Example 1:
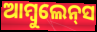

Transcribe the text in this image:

ଆମ୍ବୁଲେନ୍‌ସ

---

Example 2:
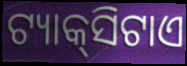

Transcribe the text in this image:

ଟ୍ୟାକ୍‌ସିଟାଏ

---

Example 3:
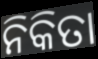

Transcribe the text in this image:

ନିକିତା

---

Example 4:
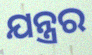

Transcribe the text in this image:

ଯନ୍ତ୍ରର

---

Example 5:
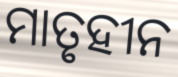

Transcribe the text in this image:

ମାତୃହୀନ